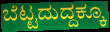
ಬೆಟ್ಟದುದ್ದಕ್ಕೂ